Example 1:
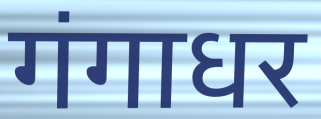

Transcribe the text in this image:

गंगाधर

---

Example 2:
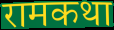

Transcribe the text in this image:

रामकथा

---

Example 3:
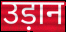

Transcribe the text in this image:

उड़ान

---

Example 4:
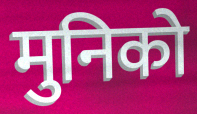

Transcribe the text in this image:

मुनिको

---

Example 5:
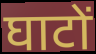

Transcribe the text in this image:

घाटों